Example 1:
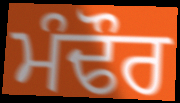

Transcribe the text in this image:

ਮੰਢੌਰ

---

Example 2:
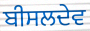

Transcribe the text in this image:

ਬੀਸਲਦੇਵ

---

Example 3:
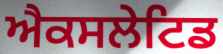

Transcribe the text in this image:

ਐਕਸਲੇਟਿਡ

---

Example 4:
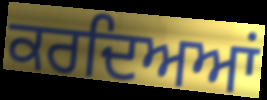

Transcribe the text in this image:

ਕਰਦਿਅਆਂ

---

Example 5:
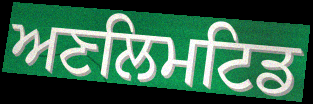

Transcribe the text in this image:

ਅਣਲਿਮਟਿਡ